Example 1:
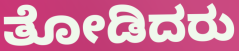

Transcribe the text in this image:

ತೋಡಿದರು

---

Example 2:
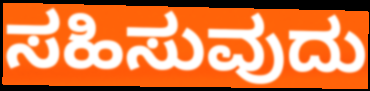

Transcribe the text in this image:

ಸಹಿಸುವುದು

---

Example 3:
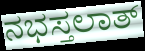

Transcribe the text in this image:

ನಭಸ್ತಲಾತ್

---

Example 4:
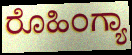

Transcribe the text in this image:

ರೊಹಿಂಗ್ಯಾ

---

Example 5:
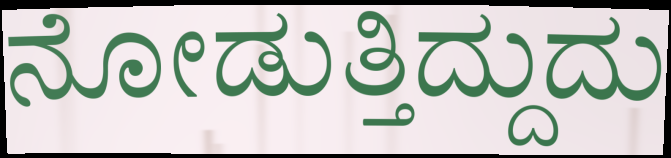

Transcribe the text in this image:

ನೋಡುತ್ತಿದ್ದುದು